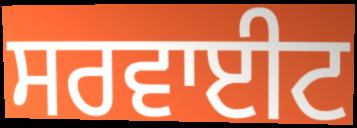
ਸਰਵਾਈਟ